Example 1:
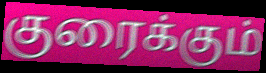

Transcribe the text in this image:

குரைக்கும்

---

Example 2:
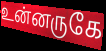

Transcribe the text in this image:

உன்னருகே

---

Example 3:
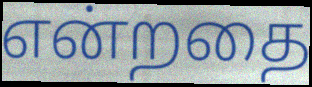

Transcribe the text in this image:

என்றதை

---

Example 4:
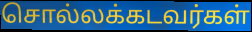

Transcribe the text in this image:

சொல்லக்கடவர்கள்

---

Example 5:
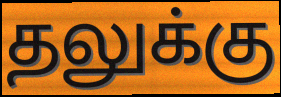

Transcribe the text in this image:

தலுக்கு